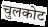
चुलकोट